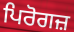
ਪਿਰੋਗਜ਼